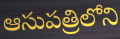
ఆసుపత్రిలోని